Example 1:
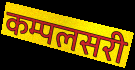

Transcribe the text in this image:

कम्पलसरी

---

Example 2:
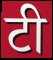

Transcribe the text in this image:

टी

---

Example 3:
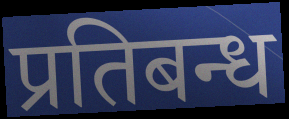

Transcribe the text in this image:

प्रतिबन्ध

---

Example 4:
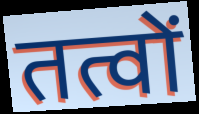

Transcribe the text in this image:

तत्वों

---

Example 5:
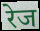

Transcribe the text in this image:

रेज